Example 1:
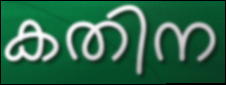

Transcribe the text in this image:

കതിന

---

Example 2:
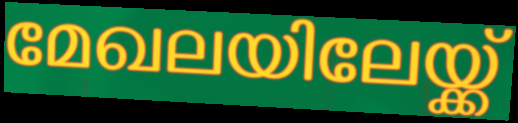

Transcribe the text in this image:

മേഖലയിലേയ്ക്ക്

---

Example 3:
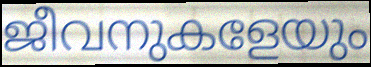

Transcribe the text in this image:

ജീവനുകളേയും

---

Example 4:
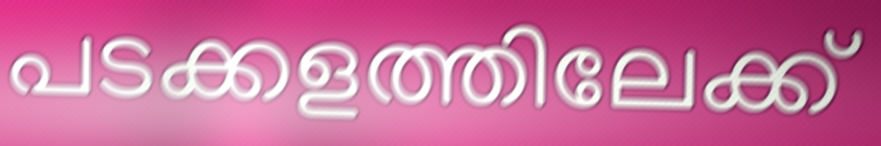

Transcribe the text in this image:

പടക്കളത്തിലേക്ക്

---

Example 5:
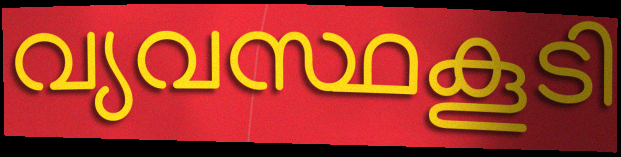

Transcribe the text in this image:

വ്യവസ്ഥകൂടി